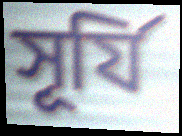
সূর্যি